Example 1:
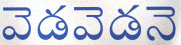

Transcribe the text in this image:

వెడవెడనె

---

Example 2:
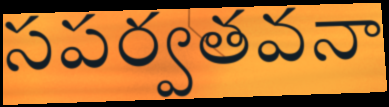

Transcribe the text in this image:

సపర్వతవనా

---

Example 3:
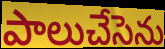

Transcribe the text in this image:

పాలుచేసెను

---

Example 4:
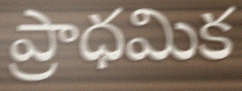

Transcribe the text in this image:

ప్రాధమిక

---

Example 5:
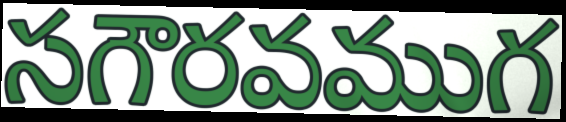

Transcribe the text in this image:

సగౌరవముగ